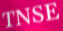
TNSE